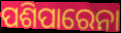
ପଶିପାରେନା